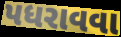
પધરાવવા